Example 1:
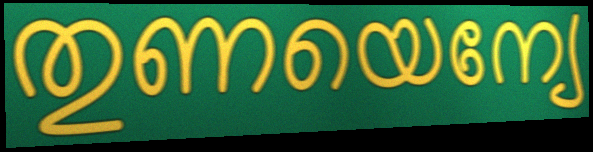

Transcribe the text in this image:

തുണയെന്യേ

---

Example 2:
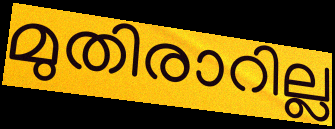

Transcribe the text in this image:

മുതിരാറില്ല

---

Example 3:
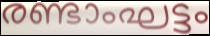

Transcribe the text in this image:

രണ്ടാംഘട്ടം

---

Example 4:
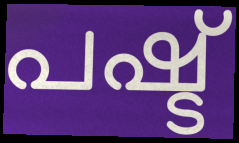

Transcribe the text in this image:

പഷ്ട്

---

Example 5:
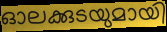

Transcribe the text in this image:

ഓലക്കുടയുമായി